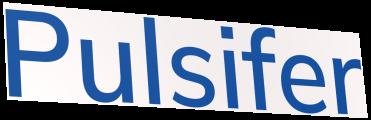
Pulsifer